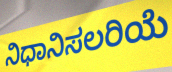
ನಿಧಾನಿಸಲರಿಯೆ